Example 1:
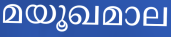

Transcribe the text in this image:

മയൂഖമാല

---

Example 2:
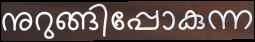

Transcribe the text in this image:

നുറുങ്ങിപ്പോകുന്ന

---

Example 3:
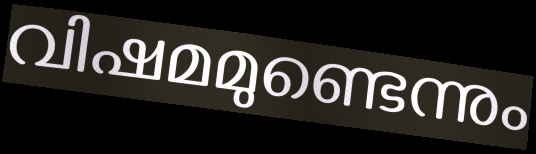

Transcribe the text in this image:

വിഷമമുണ്ടെന്നും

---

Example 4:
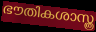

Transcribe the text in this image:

ഭൗതികശാസ്ത്ര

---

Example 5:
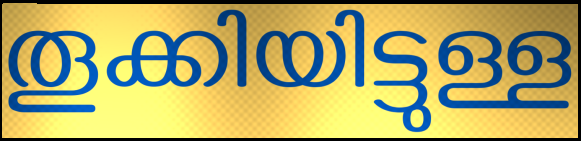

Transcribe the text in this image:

തൂക്കിയിട്ടുള്ള